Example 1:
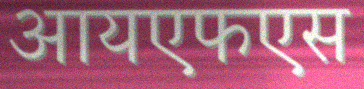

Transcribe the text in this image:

आयएफएस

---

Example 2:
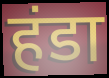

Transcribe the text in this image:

हंडा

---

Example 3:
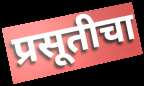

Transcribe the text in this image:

प्रसूतीचा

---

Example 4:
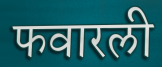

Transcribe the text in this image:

फवारली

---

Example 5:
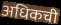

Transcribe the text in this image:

अधिकची